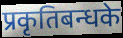
प्रकृतिबन्धके